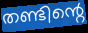
തണ്ടിന്റെ